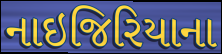
નાઇજિરિયાના